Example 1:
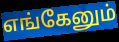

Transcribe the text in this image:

எங்கேனும்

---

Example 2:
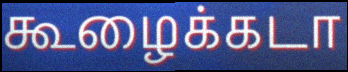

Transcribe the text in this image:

கூழைக்கடா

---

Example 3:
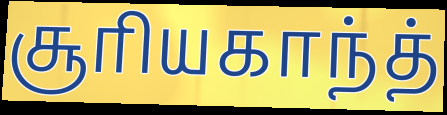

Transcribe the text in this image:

சூரியகாந்த்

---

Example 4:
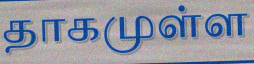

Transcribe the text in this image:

தாகமுள்ள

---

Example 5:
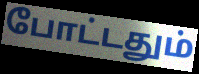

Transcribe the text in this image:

போட்டதும்